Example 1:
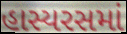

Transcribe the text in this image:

હાસ્યરસમાં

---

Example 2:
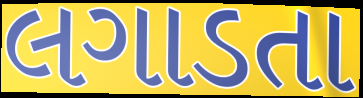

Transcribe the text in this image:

લગાડતા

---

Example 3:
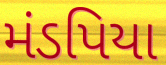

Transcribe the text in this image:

મંડપિયા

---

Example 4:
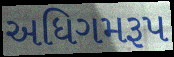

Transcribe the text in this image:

અધિગમરૂપ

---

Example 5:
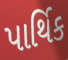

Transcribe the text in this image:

પાર્થિક